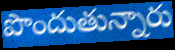
పొందుతున్నారు